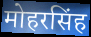
मोहरसिंह